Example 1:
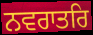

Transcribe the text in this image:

ਨਵਰਾਤਰਿ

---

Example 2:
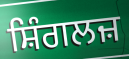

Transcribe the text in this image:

ਸ਼ਿੰਗਲਜ਼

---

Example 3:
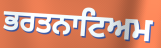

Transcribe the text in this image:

ਭਰਤਨਾਟਿਅਮ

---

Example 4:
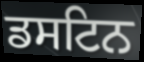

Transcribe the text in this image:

ਡਸਟਿਨ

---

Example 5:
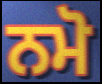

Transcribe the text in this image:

ਨਮੋ